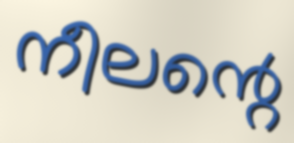
നീലന്റെ